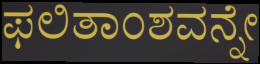
ಫಲಿತಾಂಶವನ್ನೇ